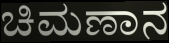
ಚಿಮಣಾನ